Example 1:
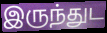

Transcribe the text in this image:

இருந்துட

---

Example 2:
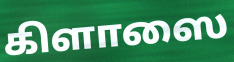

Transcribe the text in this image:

கிளாஸை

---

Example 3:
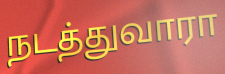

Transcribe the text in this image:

நடத்துவாரா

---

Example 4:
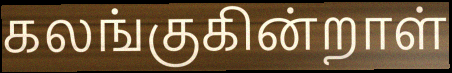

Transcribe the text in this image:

கலங்குகின்றாள்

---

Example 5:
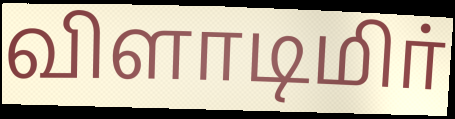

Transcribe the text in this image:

விளாடிமிர்